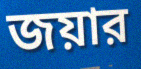
জয়ার